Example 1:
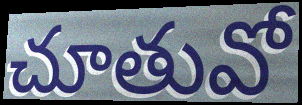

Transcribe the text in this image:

చూతువో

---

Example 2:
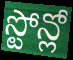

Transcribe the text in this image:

స్టోన్లో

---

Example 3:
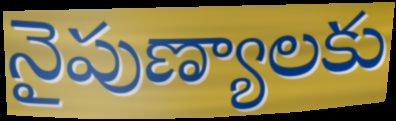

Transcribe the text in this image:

నైపుణ్యాలకు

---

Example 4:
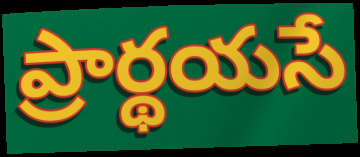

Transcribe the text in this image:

ప్రార్థయసే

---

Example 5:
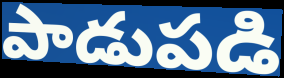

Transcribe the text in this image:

పాడుపడి